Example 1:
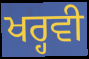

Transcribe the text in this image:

ਖਰ੍ਹਵੀ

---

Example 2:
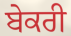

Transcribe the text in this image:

ਬੇਕਰੀ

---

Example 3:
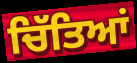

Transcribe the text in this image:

ਚਿੱਤਿਆਂ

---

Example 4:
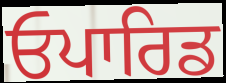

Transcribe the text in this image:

ਓਪਾਰਿਡ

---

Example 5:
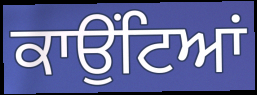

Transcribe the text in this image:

ਕਾਉਂਟਿਆਂ